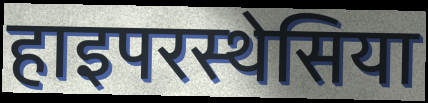
हाइपरस्थेसिया